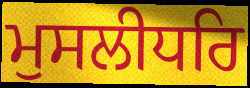
ਮੁਸਲੀਧਰਿ